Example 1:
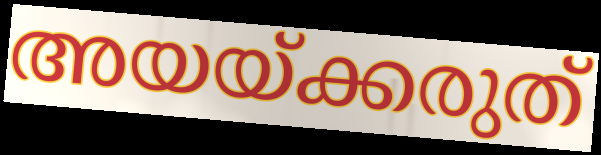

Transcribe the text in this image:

അയയ്ക്കരുത്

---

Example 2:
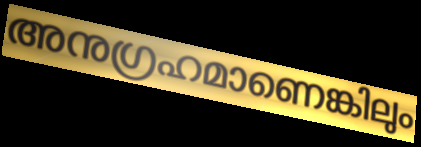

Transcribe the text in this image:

അനുഗ്രഹമാണെങ്കിലും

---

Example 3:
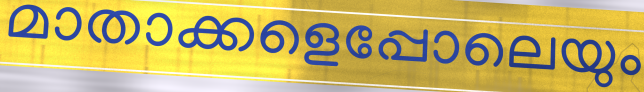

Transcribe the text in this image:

മാതാക്കളെപ്പോലെയും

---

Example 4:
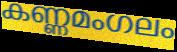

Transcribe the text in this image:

കണ്ണമംഗലം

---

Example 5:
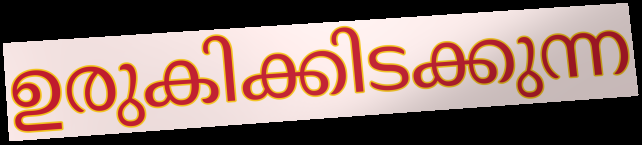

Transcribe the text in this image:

ഉരുകിക്കിടക്കുന്ന